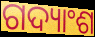
ଗଦ୍ୟାଂଶ